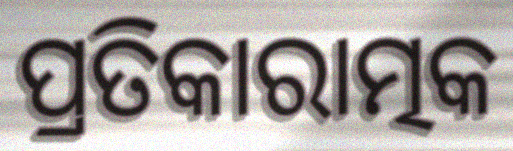
ପ୍ରତିକାରାତ୍ମକ